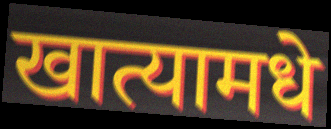
खात्यामधे